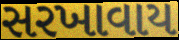
સરખાવાય